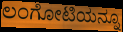
ಲಂಗೋಟಿಯನ್ನೂ